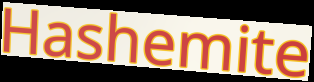
Hashemite